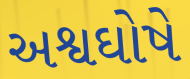
અશ્વઘોષે